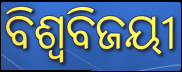
ବିଶ୍ବବିଜୟୀ